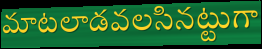
మాటలాడవలసినట్టుగా